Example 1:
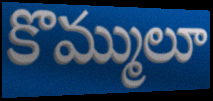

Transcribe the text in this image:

కొమ్ములూ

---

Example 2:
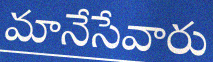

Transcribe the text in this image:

మానేసేవారు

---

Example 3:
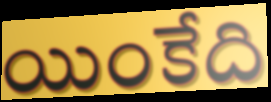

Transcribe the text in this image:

యింకేది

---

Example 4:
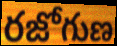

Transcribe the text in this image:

రజోగుణ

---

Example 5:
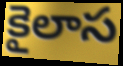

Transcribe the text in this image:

కైలాస